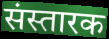
संस्तारक